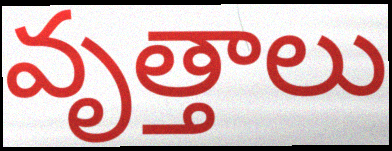
వృత్తాలు